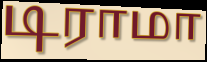
டிராமா